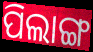
ପିଲାଙ୍ଗ